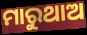
ମାରୁଥାଅ